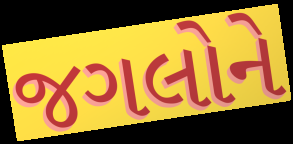
જગલોને